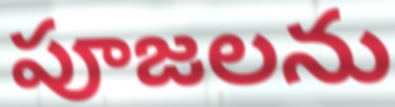
పూజలను